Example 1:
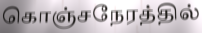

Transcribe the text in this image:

கொஞ்சநேரத்தில்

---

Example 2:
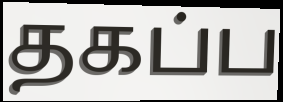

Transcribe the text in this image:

தகப்ப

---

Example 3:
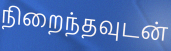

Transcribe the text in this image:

நிறைந்தவுடன்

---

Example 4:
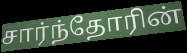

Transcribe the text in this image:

சார்ந்தோரின்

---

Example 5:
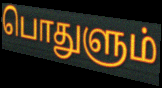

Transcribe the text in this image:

பொதுளும்